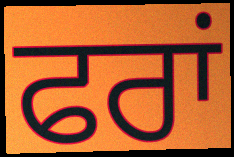
ਫਰਾਂ